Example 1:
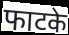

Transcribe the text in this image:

फाटके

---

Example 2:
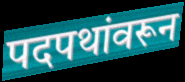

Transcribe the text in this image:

पदपथांवरून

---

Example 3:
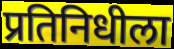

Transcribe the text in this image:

प्रतिनिधीला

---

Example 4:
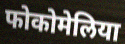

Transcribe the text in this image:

फोकोमेलिया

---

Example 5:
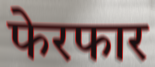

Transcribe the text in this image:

फेरफार